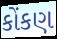
કોંકણ